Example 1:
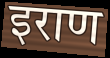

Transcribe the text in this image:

इराण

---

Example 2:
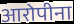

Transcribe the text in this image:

आरोपीना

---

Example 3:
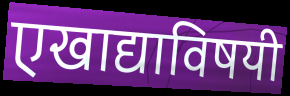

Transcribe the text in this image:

एखाद्याविषयी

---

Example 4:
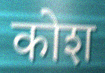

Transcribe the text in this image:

कोश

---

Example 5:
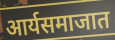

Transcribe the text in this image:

आर्यसमाजात